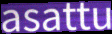
asattu